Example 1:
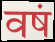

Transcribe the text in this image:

वषं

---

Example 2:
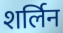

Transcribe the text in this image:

शर्लिन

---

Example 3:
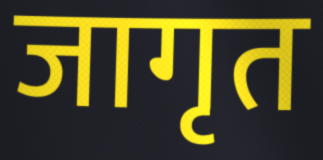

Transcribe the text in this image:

जागृत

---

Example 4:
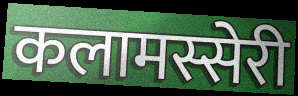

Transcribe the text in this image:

कलामस्सेरी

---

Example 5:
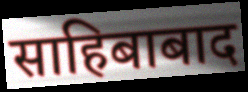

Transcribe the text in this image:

साहिबाबाद